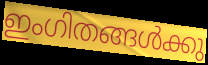
ഇംഗിതങ്ങൾക്കു